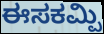
ಈಸಕಮ್ಪಿ